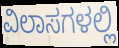
ವಿಲಾಸಗಳಲ್ಲಿ